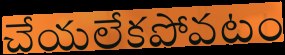
చేయలేకపోవటం